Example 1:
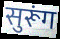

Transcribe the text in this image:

सुरूंग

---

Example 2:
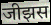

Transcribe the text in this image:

जीझस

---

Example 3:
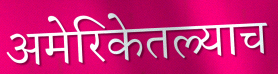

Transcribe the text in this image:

अमेरिकेतल्याच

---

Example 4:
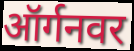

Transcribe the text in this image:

ऑर्गनवर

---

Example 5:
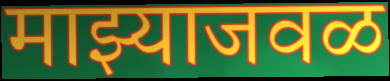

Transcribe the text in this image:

माझ्याजवळ